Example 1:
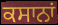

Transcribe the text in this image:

ਕਸਾਨਾਂ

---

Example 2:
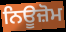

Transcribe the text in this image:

ਨਿਊਜ਼ੋਮ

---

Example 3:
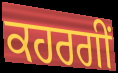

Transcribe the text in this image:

ਕਹਰਗੀਂ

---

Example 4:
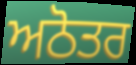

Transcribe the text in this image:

ਅਠੋਤਰ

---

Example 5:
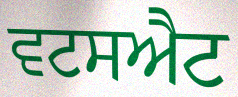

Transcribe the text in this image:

ਵਟਸਐਟ